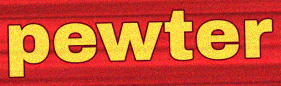
pewter